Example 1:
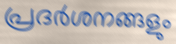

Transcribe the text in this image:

പ്രദർശനങ്ങളും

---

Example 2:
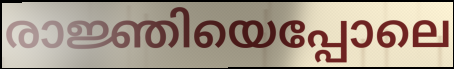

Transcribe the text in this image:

രാജ്ഞിയെപ്പോലെ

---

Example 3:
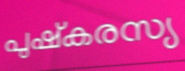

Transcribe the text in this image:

പുഷ്കരസ്യ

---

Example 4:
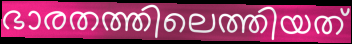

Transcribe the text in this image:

ഭാരതത്തിലെത്തിയത്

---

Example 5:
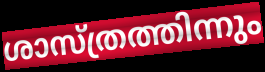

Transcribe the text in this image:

ശാസ്ത്രത്തിന്നും